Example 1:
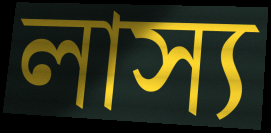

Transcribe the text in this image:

লাস্য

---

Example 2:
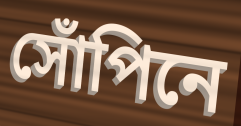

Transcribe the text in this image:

সোঁপিনে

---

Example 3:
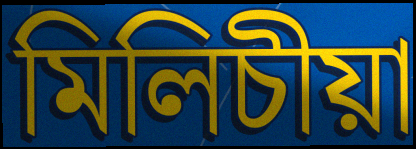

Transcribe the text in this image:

মিলিচীয়া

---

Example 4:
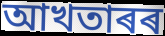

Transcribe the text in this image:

আখতাৰৰ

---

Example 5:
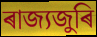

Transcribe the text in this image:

ৰাজ্যজুৰি